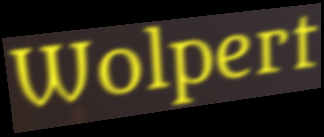
Wolpert